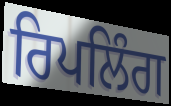
ਰਿਪਲਿੰਗ